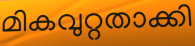
മികവുറ്റതാക്കി